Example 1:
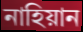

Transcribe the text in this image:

নাহিয়ান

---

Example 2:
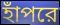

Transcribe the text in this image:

হাঁপরে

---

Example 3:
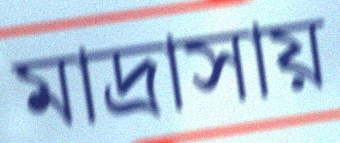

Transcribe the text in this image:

মাদ্রাসায়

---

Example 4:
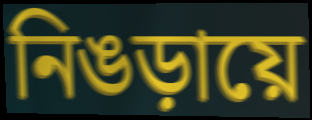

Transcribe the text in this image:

নিঙড়ায়ে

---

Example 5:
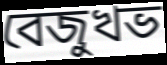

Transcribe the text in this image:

বেজুখভ